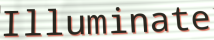
Illuminate